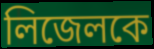
লিজেলকে